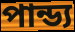
পান্ড্য